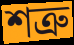
শত্রু